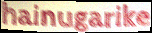
hainugarike